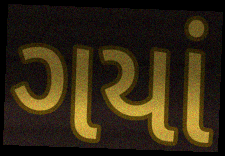
ગયાં